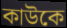
কাউকে